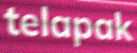
telapak